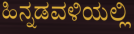
ಹಿನ್ನಡವಳಿಯಲ್ಲಿ